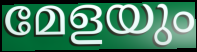
മേളയും